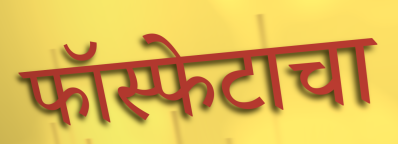
फॉस्फेटाचा